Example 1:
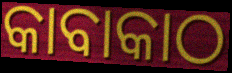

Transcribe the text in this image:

କାବାକାଠ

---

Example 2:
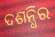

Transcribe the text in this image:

ଦଶନ୍ଧିର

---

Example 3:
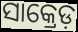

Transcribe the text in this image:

ସାକ୍ରେଡ଼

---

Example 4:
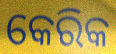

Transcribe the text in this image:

କେରିକ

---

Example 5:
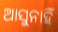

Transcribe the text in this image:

ଆସୁନାହିଁ